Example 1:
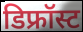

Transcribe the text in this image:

डिफ्रॉस्ट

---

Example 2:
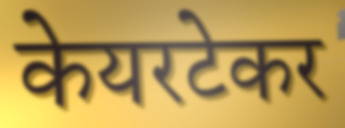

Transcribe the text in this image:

केयरटेकर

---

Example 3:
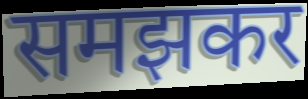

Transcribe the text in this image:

समझकर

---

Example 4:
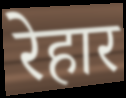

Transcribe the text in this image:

रेहार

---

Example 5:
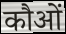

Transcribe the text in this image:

कौओं